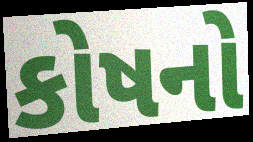
કોષનો